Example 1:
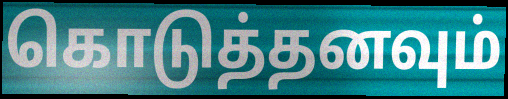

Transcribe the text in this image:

கொடுத்தனவும்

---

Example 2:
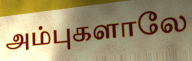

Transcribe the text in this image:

அம்புகளாலே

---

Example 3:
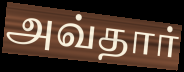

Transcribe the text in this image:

அவ்தார்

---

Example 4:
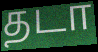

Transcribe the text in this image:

தடா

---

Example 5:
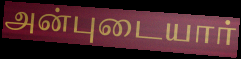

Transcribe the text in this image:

அன்புடையார்